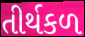
તીર્થકળ